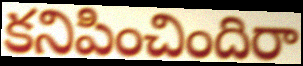
కనిపించిందిరా